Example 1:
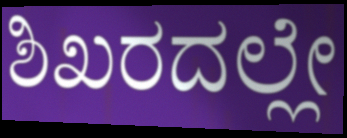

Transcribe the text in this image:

ಶಿಖರದಲ್ಲೇ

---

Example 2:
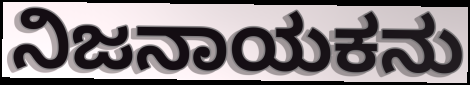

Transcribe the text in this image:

ನಿಜನಾಯಕನು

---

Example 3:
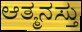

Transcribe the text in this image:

ಆತ್ಮನಸ್ತು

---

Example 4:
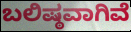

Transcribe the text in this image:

ಬಲಿಷ್ಠವಾಗಿವೆ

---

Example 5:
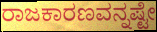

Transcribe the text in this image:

ರಾಜಕಾರಣವನ್ನಷ್ಟೇ